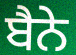
ਬੈਨੇ